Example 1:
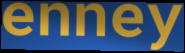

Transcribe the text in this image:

enney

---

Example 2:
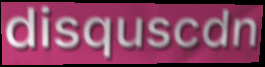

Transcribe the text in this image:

disquscdn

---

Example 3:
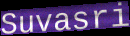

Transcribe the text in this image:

Suvasri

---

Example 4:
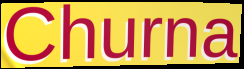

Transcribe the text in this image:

Churna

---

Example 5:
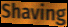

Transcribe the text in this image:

Shaving